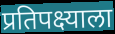
प्रतिपक्ष्याला